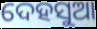
ଦେହସୁଆ